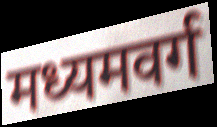
मध्यमवर्ग